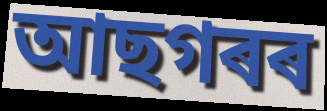
আছগৰৰ